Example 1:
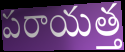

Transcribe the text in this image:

పరాయత్త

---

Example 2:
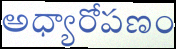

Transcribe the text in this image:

అధ్యారోపణం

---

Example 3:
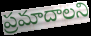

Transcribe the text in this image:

ప్రమాదాలని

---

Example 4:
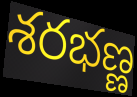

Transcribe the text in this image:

శరభణ్ణ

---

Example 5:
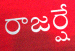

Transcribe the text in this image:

రాజర్షే